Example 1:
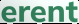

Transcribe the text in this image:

erent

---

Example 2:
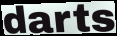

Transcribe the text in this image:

darts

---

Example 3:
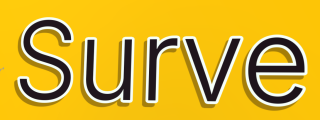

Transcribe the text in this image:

Surve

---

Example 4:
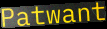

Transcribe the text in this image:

Patwant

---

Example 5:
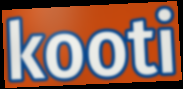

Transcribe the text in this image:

kooti